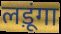
लड़ूंगा